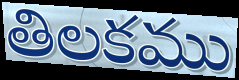
తిలకము